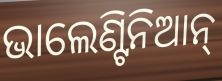
ଭାଲେଣ୍ଟିନିଆନ୍